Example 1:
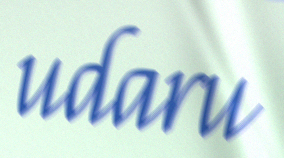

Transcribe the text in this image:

udaru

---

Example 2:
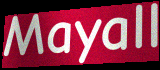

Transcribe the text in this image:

Mayall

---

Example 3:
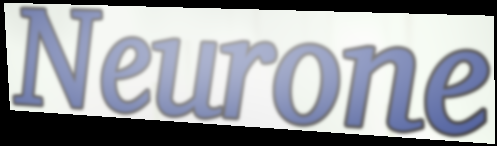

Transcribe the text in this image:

Neurone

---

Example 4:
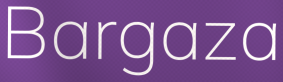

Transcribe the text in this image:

Bargaza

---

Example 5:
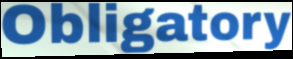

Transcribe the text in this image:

Obligatory